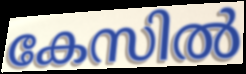
കേസിൽ